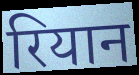
रियान